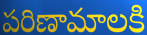
పరిణామాలకి